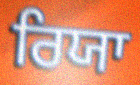
ਰਿਯਾ